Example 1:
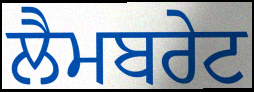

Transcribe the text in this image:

ਲੈਮਬਰੇਟ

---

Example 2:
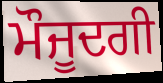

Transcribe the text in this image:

ਮੌਜੂਦਗੀ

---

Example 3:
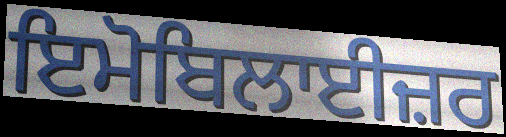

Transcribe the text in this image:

ਇਮੋਬਿਲਾਈਜ਼ਰ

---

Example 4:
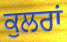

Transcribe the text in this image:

ਕੁਲਰਾਂ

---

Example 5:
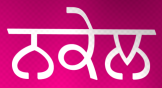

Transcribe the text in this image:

ਨਕੇਲ